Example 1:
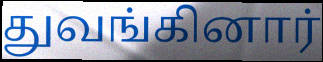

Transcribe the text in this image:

துவங்கினார்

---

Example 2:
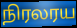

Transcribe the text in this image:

நிரலரய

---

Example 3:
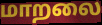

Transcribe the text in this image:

மாறலை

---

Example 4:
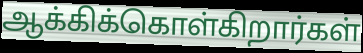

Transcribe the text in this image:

ஆக்கிக்கொள்கிறார்கள்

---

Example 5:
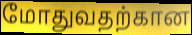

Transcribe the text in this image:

மோதுவதற்கான